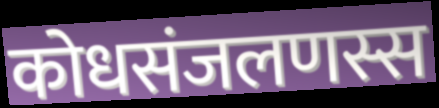
कोधसंजलणस्स